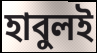
হাবুলই